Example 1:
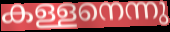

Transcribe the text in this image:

കള്ളനെന്നു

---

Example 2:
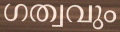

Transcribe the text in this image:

ഗത്വവും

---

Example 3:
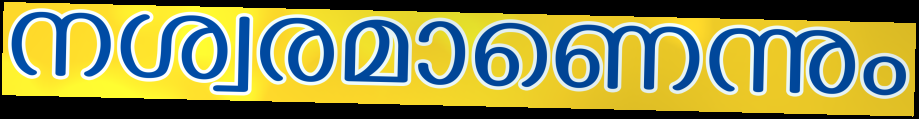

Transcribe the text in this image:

നശ്വരമാണെന്നും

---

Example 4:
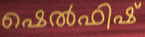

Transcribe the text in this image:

ഷെൽഫിഷ്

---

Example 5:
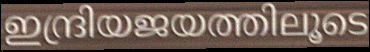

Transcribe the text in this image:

ഇന്ദ്രിയജയത്തിലൂടെ